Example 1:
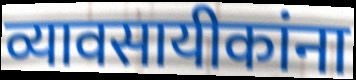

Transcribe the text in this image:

व्यावसायीकांना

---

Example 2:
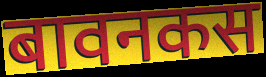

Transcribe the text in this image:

बावनकस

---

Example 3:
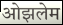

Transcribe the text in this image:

ओझलेम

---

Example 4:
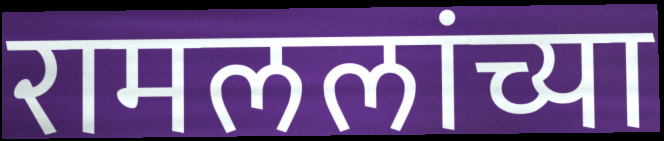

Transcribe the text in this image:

रामललांच्या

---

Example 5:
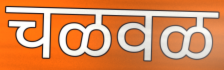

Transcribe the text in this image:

चळवळ